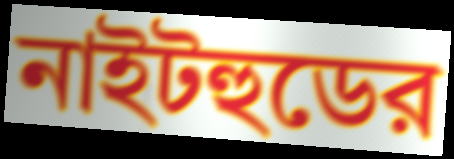
নাইটহুডের